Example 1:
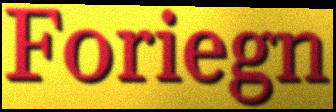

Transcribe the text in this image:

Foriegn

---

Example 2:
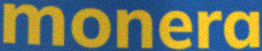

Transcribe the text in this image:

monera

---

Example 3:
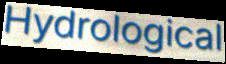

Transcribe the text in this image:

Hydrological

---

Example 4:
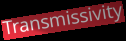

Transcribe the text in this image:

Transmissivity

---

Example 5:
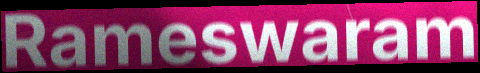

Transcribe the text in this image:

Rameswaram